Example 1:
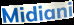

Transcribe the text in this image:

Midiani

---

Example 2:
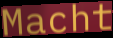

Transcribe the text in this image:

Macht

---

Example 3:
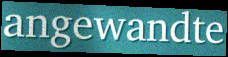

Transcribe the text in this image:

angewandte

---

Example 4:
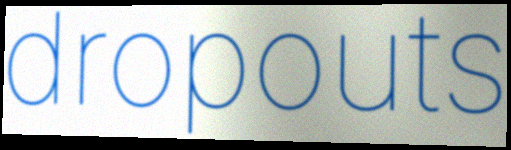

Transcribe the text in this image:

dropouts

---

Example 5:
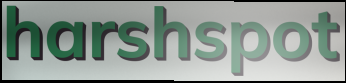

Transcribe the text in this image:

harshspot